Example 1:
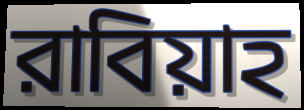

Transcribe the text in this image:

রাবিয়াহ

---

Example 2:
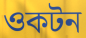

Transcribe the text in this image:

ওকটন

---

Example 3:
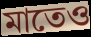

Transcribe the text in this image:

মাতেও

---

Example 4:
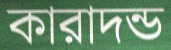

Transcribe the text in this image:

কারাদন্ড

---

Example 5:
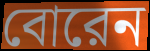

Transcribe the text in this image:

বোরেন